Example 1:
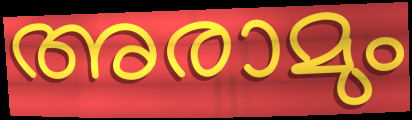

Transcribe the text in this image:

അരാമും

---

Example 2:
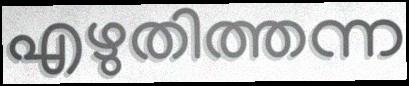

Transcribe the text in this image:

എഴുതിത്തന്ന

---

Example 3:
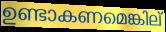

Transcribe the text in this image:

ഉണ്ടാകണമെങ്കില്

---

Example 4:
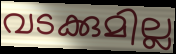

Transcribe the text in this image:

വടക്കുമില്ല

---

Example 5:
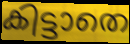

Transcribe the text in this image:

കിട്ടാതെ